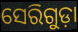
ସେରିଗୁଡ଼ା